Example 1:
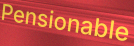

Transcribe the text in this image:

Pensionable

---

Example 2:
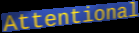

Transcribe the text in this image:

Attentional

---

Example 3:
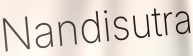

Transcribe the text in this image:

Nandisutra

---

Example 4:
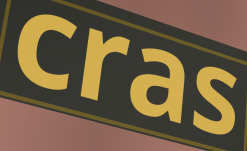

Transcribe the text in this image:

cras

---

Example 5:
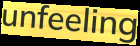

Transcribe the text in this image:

unfeeling